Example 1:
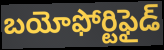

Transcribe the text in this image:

బయోఫోర్టిఫైడ్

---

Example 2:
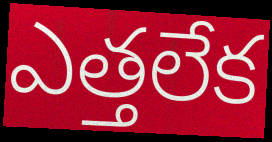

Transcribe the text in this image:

ఎత్తలేక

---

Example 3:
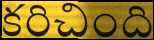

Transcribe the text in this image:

కరిచింది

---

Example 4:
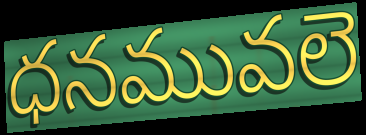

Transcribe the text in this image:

ధనమువలె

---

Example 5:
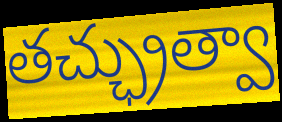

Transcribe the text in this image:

తచ్ఛ్రుత్వా